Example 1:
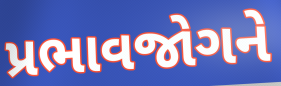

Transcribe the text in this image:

પ્રભાવજોગને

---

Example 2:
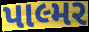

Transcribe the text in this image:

પાલ્મર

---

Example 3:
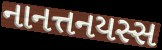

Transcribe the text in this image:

નાનત્તનયસ્સ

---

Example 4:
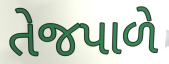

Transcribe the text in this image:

તેજપાળે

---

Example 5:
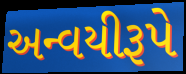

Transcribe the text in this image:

અન્વયીરૂપે